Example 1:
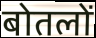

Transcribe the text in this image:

बोतलों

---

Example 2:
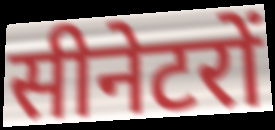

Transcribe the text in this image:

सीनेटरों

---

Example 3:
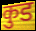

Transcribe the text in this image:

कुड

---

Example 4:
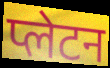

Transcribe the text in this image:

प्लेटन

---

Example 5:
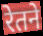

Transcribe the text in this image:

रेतने